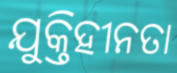
ଯୁକ୍ତିହୀନତା